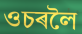
ওচৰলৈ